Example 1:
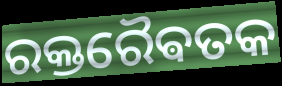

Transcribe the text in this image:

ରକ୍ତରୈଵତକ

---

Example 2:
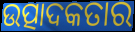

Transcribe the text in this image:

ଉତ୍ପାଦକତାର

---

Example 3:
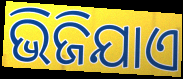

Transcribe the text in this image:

ଭିଜିଯାଏ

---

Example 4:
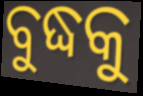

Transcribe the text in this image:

ବୁଦ୍ଧକୁ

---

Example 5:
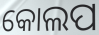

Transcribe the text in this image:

କୋଲପ